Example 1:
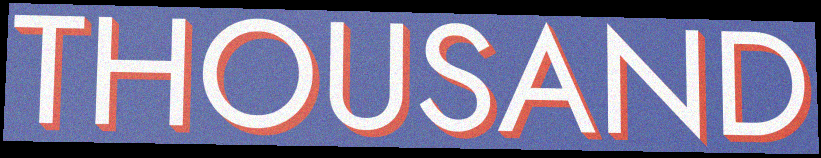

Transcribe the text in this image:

THOUSAND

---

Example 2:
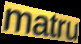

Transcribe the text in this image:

matru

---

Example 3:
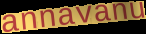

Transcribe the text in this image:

annavanu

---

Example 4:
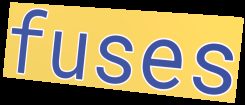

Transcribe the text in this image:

fuses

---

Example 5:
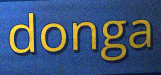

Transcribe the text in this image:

donga